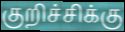
குறிச்சிக்கு